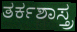
ತರ್ಕಶಾಸ್ತ್ರ